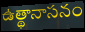
ఉత్థానాసనం